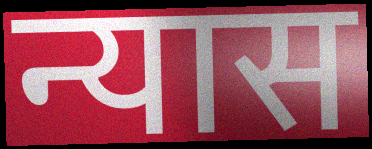
न्यास